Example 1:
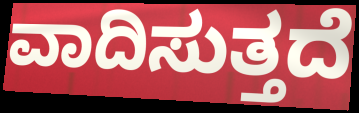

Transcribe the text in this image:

ವಾದಿಸುತ್ತದೆ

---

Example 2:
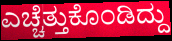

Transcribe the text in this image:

ಎಚ್ಚೆತ್ತುಕೊಂಡಿದ್ದು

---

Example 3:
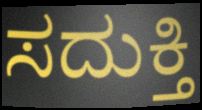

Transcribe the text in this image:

ಸದುಕ್ತಿ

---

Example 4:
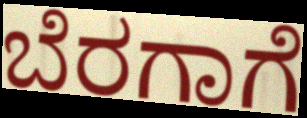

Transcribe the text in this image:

ಬೆರಗಾಗೆ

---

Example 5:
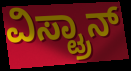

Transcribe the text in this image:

ವಿಸ್ಟ್ರಾನ್